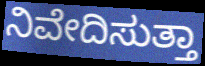
ನಿವೇದಿಸುತ್ತಾ